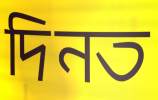
দিনত